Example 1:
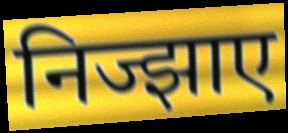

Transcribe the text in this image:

निज्झाए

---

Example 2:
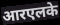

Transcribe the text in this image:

आरएलके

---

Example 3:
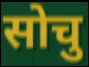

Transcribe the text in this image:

सोचु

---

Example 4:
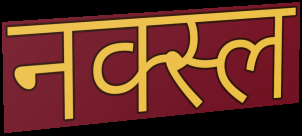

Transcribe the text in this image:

नक्स्ल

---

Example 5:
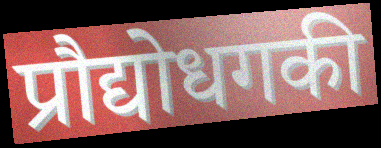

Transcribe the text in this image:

प्रौद्योधगकी